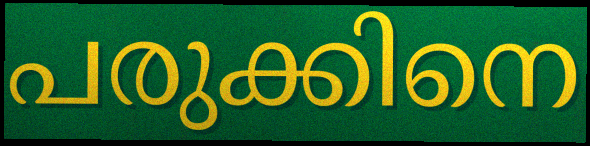
പരുക്കിനെ